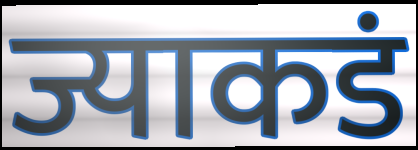
ज्याकडं